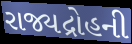
રાજ્યદ્રોહની